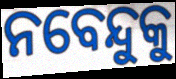
ନବେନ୍ଦୁକୁ